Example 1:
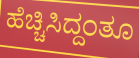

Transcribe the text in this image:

ಹೆಚ್ಚಿಸಿದ್ದಂತೂ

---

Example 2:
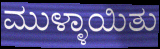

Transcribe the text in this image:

ಮುಳ್ಳಾಯಿತು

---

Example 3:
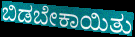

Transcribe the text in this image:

ಬಿಡಬೇಕಾಯಿತು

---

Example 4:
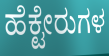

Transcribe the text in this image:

ಹೆಕ್ಟೇರುಗಳ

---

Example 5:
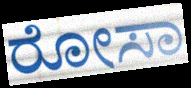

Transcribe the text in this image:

ರೋಸಾ